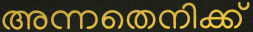
അന്നതെനിക്ക്